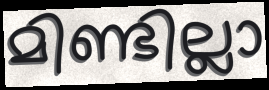
മിണ്ടില്ലാ